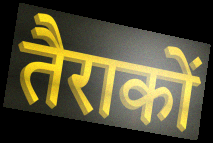
तैराकों